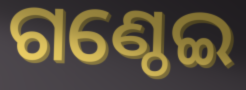
ଗଣ୍ଠେଇ